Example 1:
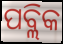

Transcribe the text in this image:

ପବ୍ଲିକ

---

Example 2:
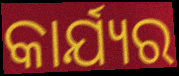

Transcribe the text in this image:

କାର୍ଯ୍ୟର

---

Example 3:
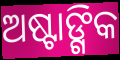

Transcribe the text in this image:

ଅଷ୍ଟାଙ୍ଗିକ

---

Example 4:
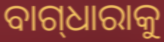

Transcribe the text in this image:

ବାଗ୍‌ଧାରାକୁ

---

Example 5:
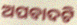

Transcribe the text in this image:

ଅପବାଦଟି